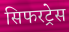
सिफरट्रेस